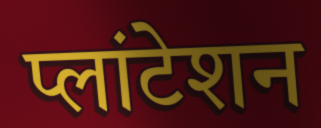
प्लांटेशन